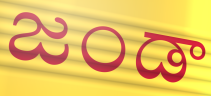
జండా